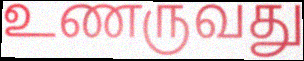
உணருவது